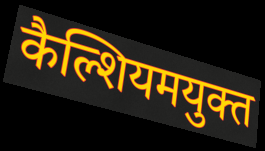
कैल्शियमयुक्त